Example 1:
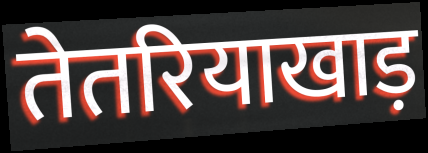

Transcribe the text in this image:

तेतरियाखाड़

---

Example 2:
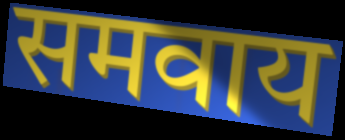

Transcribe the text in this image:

समवाय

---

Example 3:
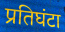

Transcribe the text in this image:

प्रतिघंटा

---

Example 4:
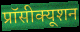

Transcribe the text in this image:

प्रॉसीक्यूशन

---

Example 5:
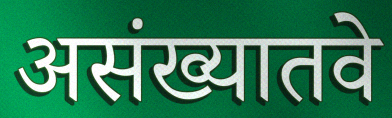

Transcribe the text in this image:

असंख्यातवे